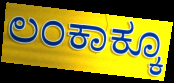
ಲಂಕಾಕ್ಕೂ